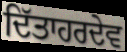
ਦਿੱਤਾਹਰਦੇਵ